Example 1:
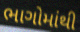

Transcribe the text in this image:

ભાગોમાંથી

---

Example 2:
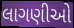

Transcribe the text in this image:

લાગણીઓ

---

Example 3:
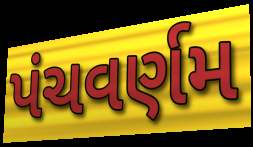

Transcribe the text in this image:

પંચવર્ણમ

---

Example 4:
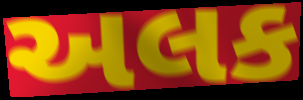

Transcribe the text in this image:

અલક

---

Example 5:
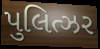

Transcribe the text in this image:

પુલિત્ઝર